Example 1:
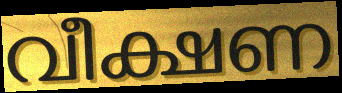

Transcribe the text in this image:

വീക്ഷണ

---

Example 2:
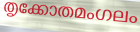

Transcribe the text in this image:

തൃക്കോതമംഗലം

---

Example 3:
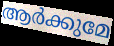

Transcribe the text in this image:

ആർക്കുമേ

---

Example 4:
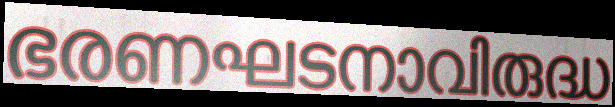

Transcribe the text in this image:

ഭരണഘടനാവിരുദ്ധ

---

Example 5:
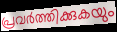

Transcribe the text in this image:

പ്രവർത്തിക്കുകയും